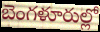
బెంగళూరుల్లో